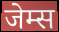
जेम्स